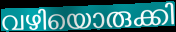
വഴിയൊരുക്കി